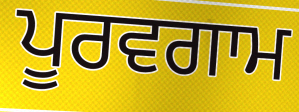
ਪੂਰਵਗਾਮ